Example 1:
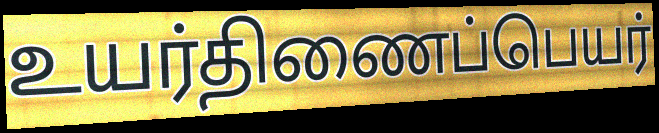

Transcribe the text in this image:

உயர்திணைப்பெயர்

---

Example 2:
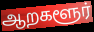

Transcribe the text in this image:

ஆறகளூர்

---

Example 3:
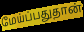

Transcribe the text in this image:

மேய்ப்பதுதான்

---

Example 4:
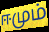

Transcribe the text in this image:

ஈமும்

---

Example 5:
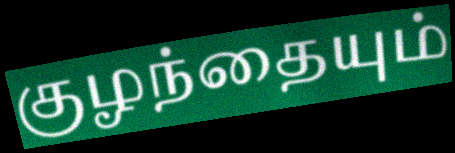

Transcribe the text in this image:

குழந்தையும்